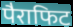
पैराफिट